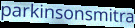
parkinsonsmitra